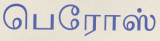
பெரோஸ்